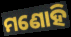
ମଣୋହି